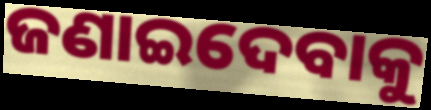
ଜଣାଇଦେବାକୁ